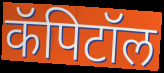
कॅपिटॉल